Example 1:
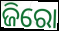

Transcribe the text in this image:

ଜିରୋ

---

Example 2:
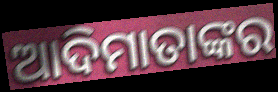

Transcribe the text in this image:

ଆଦିମାତାଙ୍କର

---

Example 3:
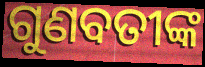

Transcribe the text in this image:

ଗୁଣବତୀଙ୍କ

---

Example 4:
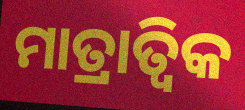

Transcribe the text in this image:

ମାତ୍ରାତ୍ଵିକ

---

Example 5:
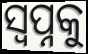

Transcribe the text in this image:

ସ୍ଵପ୍ନକୁ